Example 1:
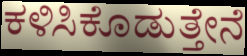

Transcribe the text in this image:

ಕಳಿಸಿಕೊಡುತ್ತೇನೆ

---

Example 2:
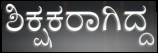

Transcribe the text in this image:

ಶಿಕ್ಷಕರಾಗಿದ್ದ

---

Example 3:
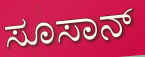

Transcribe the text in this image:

ಸೂಸಾನ್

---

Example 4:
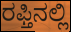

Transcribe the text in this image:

ರಫ್ತಿನಲ್ಲಿ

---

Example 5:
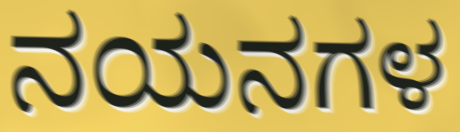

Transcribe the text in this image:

ನಯನಗಳ